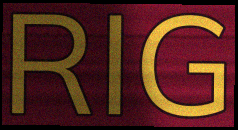
RIG